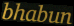
bhabun